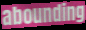
abounding